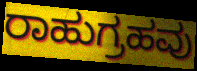
ರಾಹುಗ್ರಹವು